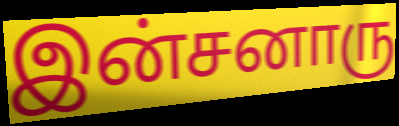
இன்சனாரு